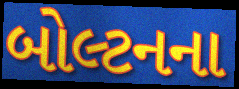
બોલ્ટનના